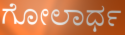
ಗೋಲಾರ್ಧ